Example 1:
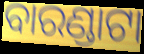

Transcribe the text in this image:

ବାରଣ୍ଡାଟା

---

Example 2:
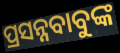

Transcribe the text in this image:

ପ୍ରସନ୍ନବାବୁଙ୍କ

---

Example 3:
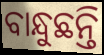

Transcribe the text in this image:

ବାନ୍ଧୁଛନ୍ତି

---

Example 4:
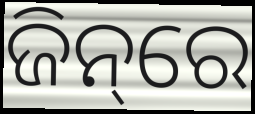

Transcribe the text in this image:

ଜିନ୍‌ରେ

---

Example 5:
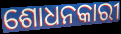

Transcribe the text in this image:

ଶୋଧନକାରୀ